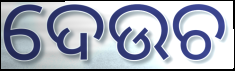
ଦେଉଚ